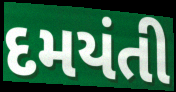
દમયંતી